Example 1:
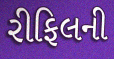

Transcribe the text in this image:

રીફિલની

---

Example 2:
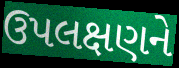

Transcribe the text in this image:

ઉપલક્ષણને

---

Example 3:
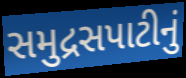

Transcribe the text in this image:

સમુદ્રસપાટીનું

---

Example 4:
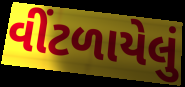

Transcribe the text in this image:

વીંટળાયેલું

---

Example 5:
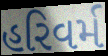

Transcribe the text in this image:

હરિવર્મ